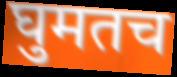
घुमतच